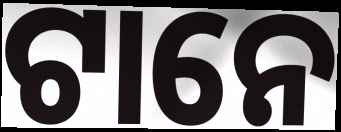
ଟାନେ